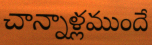
చాన్నాళ్లముందే